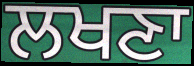
ਲਖਣਾ